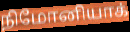
நிமோனியாக்